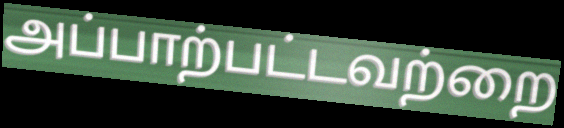
அப்பாற்பட்டவற்றை